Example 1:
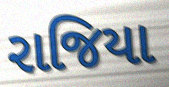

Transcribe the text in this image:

રાજિયા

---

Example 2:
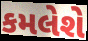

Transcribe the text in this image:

કમલેશે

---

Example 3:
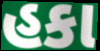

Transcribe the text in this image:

હકા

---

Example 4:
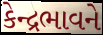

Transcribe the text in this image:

કેન્દ્રભાવને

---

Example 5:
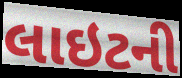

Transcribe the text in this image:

લાઇટની